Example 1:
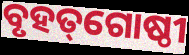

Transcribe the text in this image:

ବୃହତ୍‌ଗୋଷ୍ଠୀ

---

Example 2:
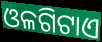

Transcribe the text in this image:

ଓଳଗିଟାଏ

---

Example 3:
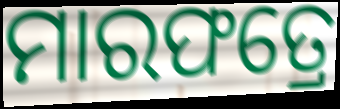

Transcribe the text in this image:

ମାରଫତ୍ରେ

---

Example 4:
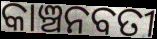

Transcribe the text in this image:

କାଞ୍ଚନବତୀ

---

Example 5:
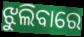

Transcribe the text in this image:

ଝୁଲିବାରେ